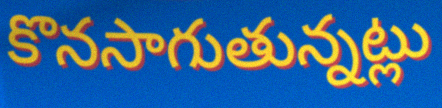
కొనసాగుతున్నట్లు